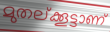
മുതല്ക്കൂട്ടാണ്